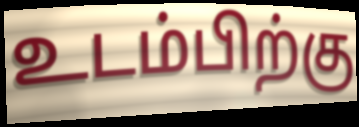
உடம்பிற்கு